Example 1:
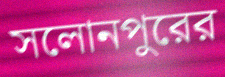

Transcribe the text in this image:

সলোনপুরের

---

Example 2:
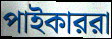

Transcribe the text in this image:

পাইকাররা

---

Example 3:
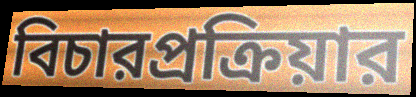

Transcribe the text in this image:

বিচারপ্রক্রিয়ার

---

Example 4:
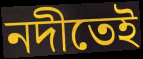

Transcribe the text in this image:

নদীতেই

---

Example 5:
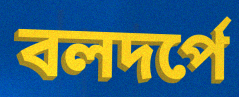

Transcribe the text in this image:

বলদর্পে